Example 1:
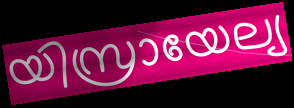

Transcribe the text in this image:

യിസ്രായേല്യ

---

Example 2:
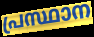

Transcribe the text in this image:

പ്രസ്ഥാന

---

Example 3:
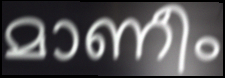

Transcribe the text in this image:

മാണീം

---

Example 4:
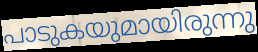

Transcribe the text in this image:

പാടുകയുമായിരുന്നു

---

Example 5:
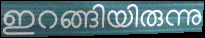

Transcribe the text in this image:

ഇറങ്ങിയിരുന്നു